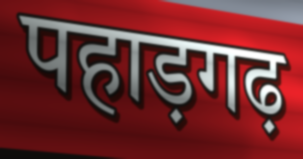
पहाड़गढ़